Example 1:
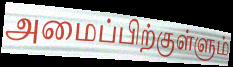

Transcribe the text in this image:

அமைப்பிற்குள்ளும்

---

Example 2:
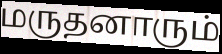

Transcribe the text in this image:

மருதனாரும்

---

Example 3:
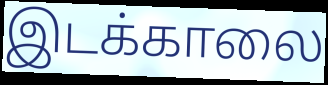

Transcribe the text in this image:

இடக்காலை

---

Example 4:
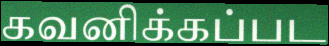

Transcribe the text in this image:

கவனிக்கப்பட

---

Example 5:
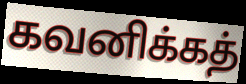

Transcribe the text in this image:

கவனிக்கத்